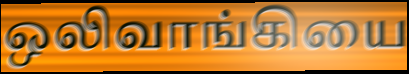
ஒலிவாங்கியை